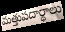
మత్తుపదార్ధాలు